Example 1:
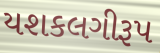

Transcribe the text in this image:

યશકલગીરૂપ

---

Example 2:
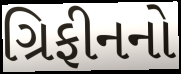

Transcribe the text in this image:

ગ્રિફીનનો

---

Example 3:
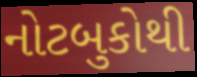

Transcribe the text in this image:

નોટબુકોથી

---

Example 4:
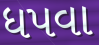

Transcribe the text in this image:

ધપવા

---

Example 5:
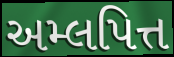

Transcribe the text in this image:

અમ્લપિત્ત